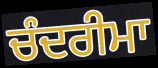
ਚੰਦਰੀਮਾ